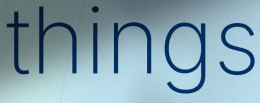
things